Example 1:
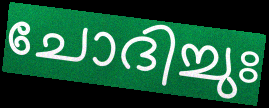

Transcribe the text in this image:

ചോദിച്ചുഃ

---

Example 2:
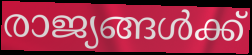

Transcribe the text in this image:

രാജ്യങ്ങൾക്ക്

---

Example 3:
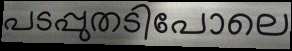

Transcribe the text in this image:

പടപ്പുതടിപോലെ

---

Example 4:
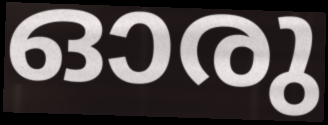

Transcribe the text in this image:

ഓരു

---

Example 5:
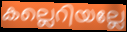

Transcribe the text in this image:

കല്ലെറിയല്ലേ